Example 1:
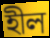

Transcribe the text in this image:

হীল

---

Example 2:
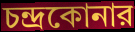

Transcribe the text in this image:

চন্দ্রকোনার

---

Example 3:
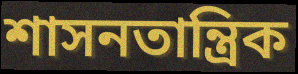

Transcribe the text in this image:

শাসনতান্ত্রিক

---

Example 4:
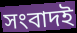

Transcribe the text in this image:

সংবাদই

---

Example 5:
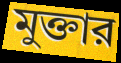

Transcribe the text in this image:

মুক্তার